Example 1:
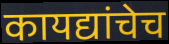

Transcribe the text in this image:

कायद्यांचेच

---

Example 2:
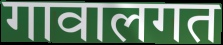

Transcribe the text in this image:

गावालगत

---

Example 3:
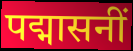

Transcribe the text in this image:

पद्मासनीं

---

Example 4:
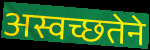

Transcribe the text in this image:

अस्वच्छतेने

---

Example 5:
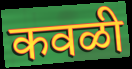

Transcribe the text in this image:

कवळी